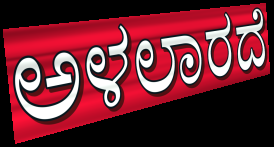
ಅಳಲಾರದೆ